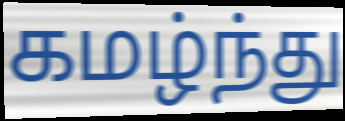
கமழ்ந்து